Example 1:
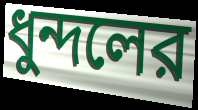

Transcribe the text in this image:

ধুন্দলের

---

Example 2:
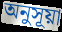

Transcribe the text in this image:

অনুসূয়া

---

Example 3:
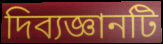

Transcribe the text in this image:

দিব্যজ্ঞানটি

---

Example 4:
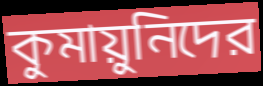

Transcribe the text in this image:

কুমায়ুনিদের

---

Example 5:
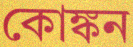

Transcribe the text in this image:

কোঙ্কন